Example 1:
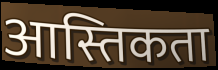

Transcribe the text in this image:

आस्तिकता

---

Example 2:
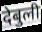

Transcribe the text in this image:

देबुली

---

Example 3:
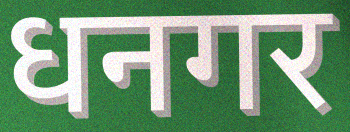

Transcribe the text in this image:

धनगर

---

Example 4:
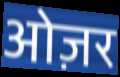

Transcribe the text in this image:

ओज़र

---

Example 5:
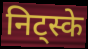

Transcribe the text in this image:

निट्स्के